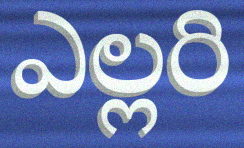
ఎల్లరి